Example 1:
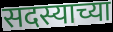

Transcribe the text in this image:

सदस्याच्या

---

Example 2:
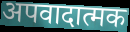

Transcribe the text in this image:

अपवादात्मक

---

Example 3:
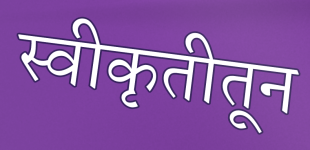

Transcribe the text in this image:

स्वीकृतीतून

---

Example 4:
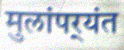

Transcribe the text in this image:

मुलांपर्यंत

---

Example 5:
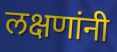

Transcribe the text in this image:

लक्षणांनी